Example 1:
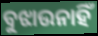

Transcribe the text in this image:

ବୁଝାଉନାହିଁ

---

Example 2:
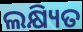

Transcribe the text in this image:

ଲକ୍ଷ୍ୟିତ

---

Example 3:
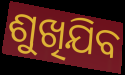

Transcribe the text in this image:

ଶୁଖିଯିବ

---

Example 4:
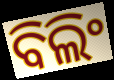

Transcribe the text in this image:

ବିଲିଂ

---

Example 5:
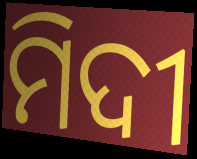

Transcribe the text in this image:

ମିଦୀ